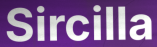
Sircilla